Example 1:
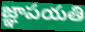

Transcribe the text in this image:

జ్ఞాపయతి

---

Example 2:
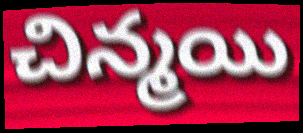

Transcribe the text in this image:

చిన్మయి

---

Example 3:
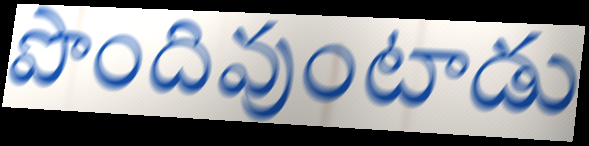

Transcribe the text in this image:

పొందివుంటాడు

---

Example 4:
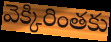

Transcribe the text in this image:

వెక్కిరింతకు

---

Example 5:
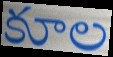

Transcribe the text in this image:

కూల